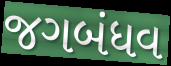
જગબંધવ